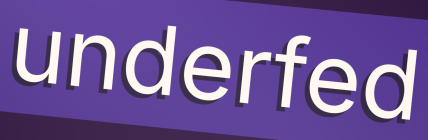
underfed